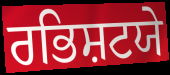
ਰਭਿਸ਼ਟਯੇ